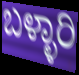
ಬಳ್ಳಾರಿ